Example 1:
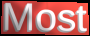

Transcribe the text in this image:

Most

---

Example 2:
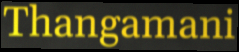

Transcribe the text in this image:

Thangamani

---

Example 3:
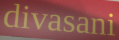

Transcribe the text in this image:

divasani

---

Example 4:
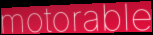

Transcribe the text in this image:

motorable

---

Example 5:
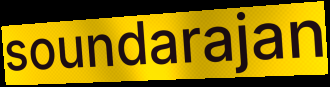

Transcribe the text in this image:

soundarajan